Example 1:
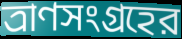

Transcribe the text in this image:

ত্রাণসংগ্রহের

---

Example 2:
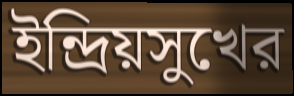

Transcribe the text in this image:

ইন্দ্রিয়সুখের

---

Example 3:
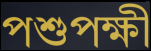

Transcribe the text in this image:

পশুপক্ষী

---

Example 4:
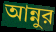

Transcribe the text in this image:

আন্নুর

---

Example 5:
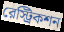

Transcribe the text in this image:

রেস্ট্রিকশন